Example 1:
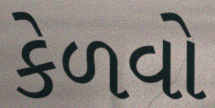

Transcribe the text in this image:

કેળવો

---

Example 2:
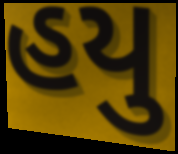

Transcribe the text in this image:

હયુ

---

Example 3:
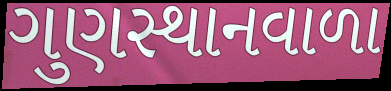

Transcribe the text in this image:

ગુણસ્થાનવાળા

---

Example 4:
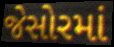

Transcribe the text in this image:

જેસોરમાં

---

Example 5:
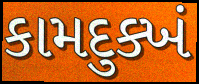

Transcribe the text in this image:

કામદુક્ખં